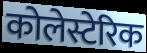
कोलेस्टेरिक